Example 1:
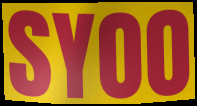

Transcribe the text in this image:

SYOO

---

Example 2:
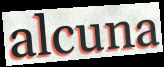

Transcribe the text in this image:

alcuna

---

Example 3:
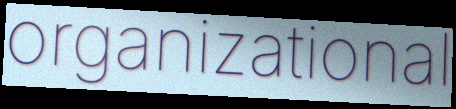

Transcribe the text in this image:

organizational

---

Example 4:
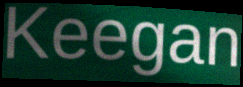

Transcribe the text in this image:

Keegan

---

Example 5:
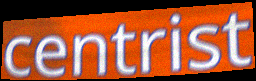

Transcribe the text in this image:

centrist